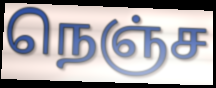
நெஞ்ச